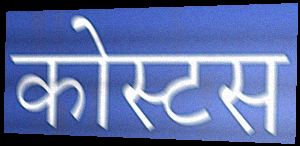
कोस्टस